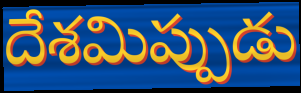
దేశమిప్పుడు